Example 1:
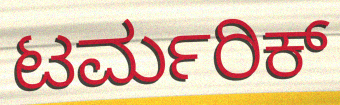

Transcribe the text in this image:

ಟರ್ಮರಿಕ್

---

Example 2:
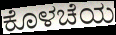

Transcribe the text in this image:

ಕೊಳಚೆಯ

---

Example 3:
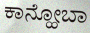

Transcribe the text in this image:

ಕಾನ್ಹೋಬಾ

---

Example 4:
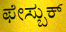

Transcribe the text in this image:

ಫೇಸ್ಬುಕ್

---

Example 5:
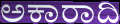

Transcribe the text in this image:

ಅಕಾರಾದಿ